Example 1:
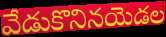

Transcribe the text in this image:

వేడుకొనినయెడల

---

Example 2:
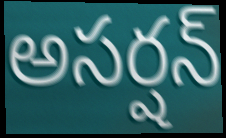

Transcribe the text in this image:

అసర్షన్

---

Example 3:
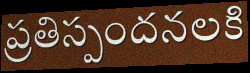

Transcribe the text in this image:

ప్రతిస్పందనలకి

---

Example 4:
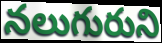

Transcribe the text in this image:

నలుగురుని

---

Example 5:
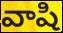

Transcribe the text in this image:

వాషి